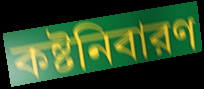
কষ্টনিবারণ